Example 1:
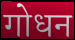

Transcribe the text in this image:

गोधन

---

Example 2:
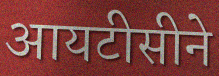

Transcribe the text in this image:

आयटीसीने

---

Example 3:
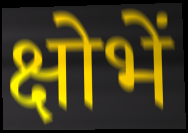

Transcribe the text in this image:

क्षोभें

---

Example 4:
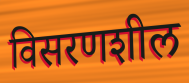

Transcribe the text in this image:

विसरणशील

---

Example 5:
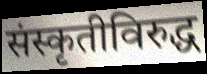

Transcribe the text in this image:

संस्कृतीविरुद्ध